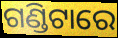
ଗଣ୍ଡିଟାରେ